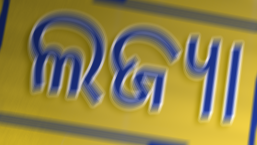
ଲଜ୍ୟା